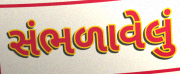
સંભળાવેલું